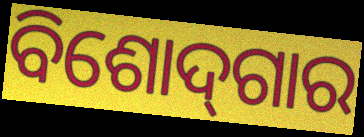
ବିଶୋଦ୍‌ଗାର